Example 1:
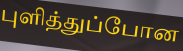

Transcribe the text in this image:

புளித்துப்போன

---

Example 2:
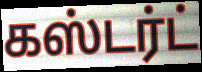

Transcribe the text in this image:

கஸ்டர்ட்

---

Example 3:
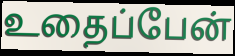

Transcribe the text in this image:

உதைப்பேன்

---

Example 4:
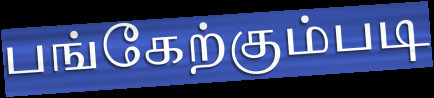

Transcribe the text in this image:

பங்கேற்கும்படி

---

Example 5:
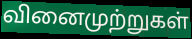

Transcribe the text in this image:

வினைமுற்றுகள்